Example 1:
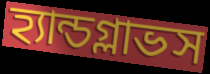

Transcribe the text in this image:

হ্যান্ডগ্লাভস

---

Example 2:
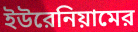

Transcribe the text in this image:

ইউরেনিয়ামের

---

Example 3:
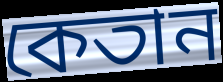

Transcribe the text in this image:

কেতান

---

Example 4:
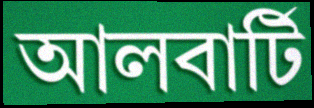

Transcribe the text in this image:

আলবার্টি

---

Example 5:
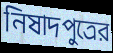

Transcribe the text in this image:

নিষাদপুত্রের